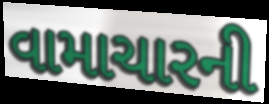
વામાચારની